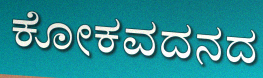
ಕೋಕವದನದ